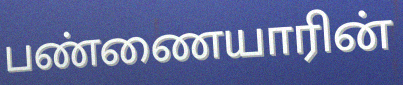
பண்ணையாரின்